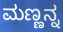
ಮಣ್ಣನ್ನ